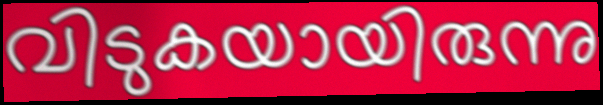
വിടുകയായിരുന്നു